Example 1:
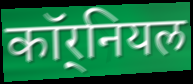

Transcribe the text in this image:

कॉर्नियल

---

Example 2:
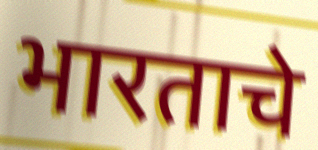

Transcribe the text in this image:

भारताचे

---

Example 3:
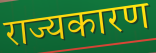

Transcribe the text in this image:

राज्यकारण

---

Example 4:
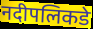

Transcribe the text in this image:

नदीपलिकडे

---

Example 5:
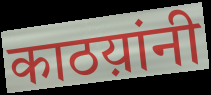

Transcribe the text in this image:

काठय़ांनी